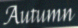
Autumn